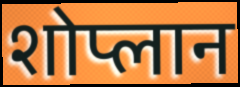
शोप्लान